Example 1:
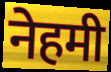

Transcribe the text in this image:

नेहमी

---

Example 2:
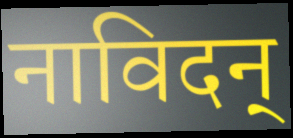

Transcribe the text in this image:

नाविदन्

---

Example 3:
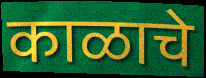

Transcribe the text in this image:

काळाचे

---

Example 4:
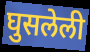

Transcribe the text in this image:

घुसलेली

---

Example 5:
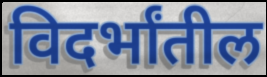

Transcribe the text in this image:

विदर्भांतील